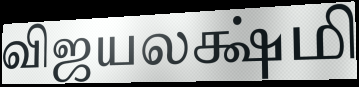
விஜயலக்ஷ்மி